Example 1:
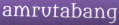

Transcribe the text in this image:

amrutabang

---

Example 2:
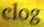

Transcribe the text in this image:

clog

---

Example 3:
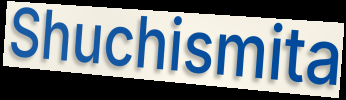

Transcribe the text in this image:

Shuchismita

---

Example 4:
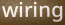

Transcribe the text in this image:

wiring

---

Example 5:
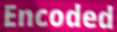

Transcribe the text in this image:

Encoded